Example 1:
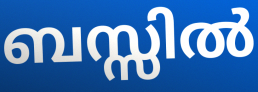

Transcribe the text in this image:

ബസ്സിൽ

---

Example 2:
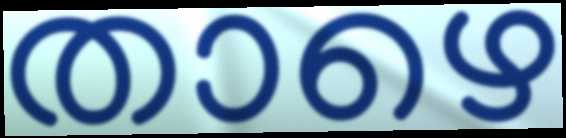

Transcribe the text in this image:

താഴെ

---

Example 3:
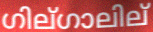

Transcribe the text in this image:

ഗില്ഗാലില്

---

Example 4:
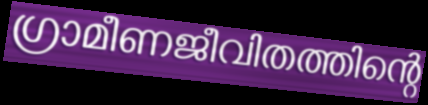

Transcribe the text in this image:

ഗ്രാമീണജീവിതത്തിന്റെ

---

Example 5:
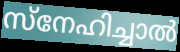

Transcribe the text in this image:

സ്നേഹിച്ചാൽ